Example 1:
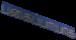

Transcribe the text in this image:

பகைப்பாயாக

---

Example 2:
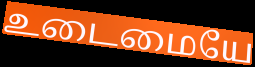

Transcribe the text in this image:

உடைமையே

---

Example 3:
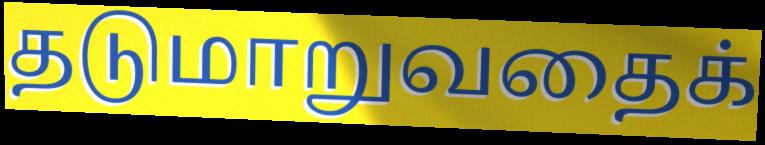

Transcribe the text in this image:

தடுமாறுவதைக்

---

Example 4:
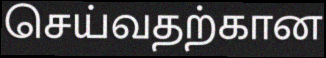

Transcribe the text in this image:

செய்வதற்கான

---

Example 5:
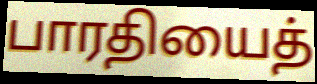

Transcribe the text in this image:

பாரதியைத்